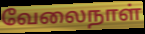
வேலைநாள்